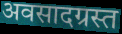
अवसादग्रस्त